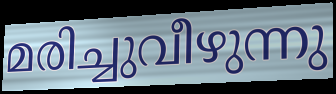
മരിച്ചുവീഴുന്നു